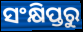
ସଂକ୍ଷିପ୍ତରୁ